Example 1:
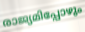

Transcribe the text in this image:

രാജ്യമിപ്പോഴും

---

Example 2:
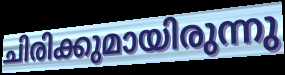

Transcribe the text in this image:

ചിരിക്കുമായിരുന്നു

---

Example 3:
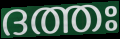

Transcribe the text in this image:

ദത്തഃ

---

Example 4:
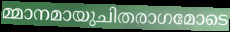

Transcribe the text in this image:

മ്മാനമായുചിതരാഗമോടെ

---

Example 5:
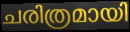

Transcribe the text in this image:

ചരിത്രമായി